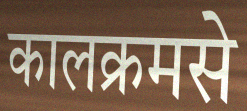
कालक्रमसे